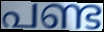
പണ്ട